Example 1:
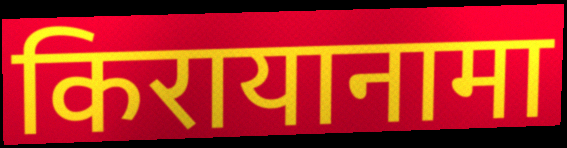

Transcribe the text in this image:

किरायानामा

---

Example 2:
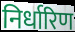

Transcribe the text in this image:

निर्धारिण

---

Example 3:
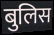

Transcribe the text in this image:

बुलिस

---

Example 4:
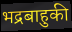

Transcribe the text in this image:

भद्रबाहुकी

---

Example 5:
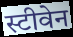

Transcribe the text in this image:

स्टीवेन